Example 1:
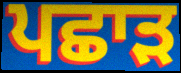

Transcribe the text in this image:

ਪਛਾੜ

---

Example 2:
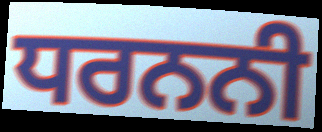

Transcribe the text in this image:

ਧਰਨਨੀ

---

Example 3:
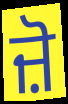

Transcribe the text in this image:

ਜ਼ੋ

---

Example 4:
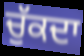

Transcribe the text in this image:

ਚੁੱਕਦਾ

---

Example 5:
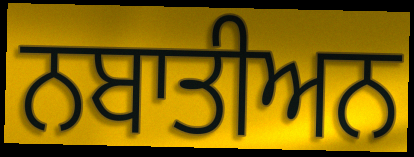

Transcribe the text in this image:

ਨਬਾਤੀਅਨ